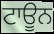
ਟਾਊਨ